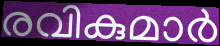
രവികുമാർ